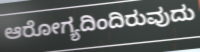
ಆರೋಗ್ಯದಿಂದಿರುವುದು